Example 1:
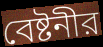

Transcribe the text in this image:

বেষ্টনীর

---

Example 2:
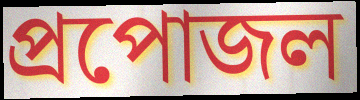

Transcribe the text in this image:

প্রপোজল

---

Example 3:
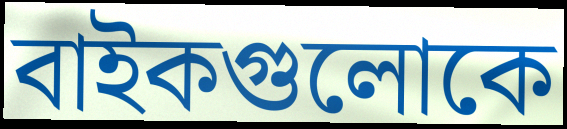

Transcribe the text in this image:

বাইকগুলোকে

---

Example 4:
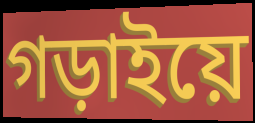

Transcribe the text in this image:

গড়াইয়ে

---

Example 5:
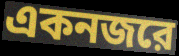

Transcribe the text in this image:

একনজরে